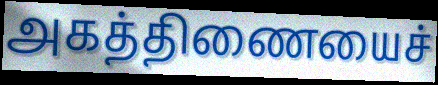
அகத்திணையைச்